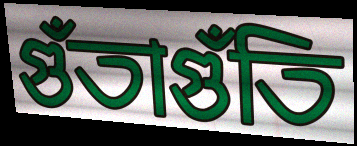
গুঁতাগুঁতি